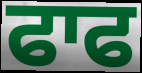
ਫਾਫ